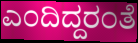
ಎಂದಿದ್ದರಂತೆ